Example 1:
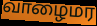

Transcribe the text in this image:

வாழைமர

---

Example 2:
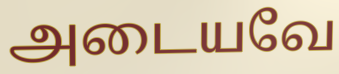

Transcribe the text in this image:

அடையவே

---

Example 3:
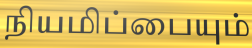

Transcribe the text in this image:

நியமிப்பையும்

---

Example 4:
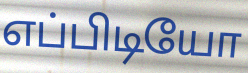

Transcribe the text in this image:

எப்பிடியோ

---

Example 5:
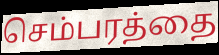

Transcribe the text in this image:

செம்பரத்தை